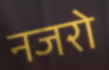
नजरो